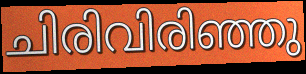
ചിരിവിരിഞ്ഞു